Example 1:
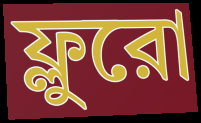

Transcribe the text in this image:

ফ্লুরো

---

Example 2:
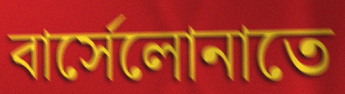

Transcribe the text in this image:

বার্সেলোনাতে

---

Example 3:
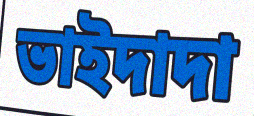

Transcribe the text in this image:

ভাইদাদা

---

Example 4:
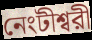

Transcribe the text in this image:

নেংটীশ্বরী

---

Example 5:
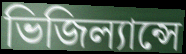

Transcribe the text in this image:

ভিজিল্যান্সে